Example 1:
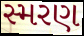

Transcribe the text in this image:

સ્‍મરણ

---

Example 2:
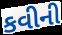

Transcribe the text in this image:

કવીની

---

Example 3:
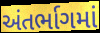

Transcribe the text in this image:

અંતર્ભાગમાં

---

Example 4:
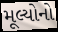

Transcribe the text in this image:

મૂલ્યોનો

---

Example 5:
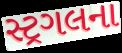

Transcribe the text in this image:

સ્ટ્રગલના